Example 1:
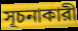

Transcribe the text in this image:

সূচনাকারী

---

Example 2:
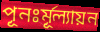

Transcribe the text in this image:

পূনঃর্মূল্যায়ন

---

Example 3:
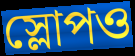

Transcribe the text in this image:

স্লোপও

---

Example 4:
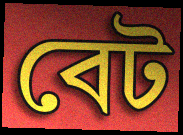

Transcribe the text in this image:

বেট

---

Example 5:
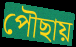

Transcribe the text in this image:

পৌছায়